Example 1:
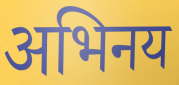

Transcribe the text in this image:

अभिनय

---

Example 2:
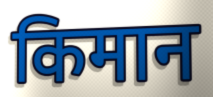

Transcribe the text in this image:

किमान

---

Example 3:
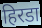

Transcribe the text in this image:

हिरडा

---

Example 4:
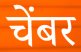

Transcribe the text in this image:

चेंबर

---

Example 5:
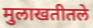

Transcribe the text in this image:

मुलाखतीतले